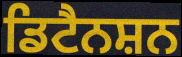
ਡਿਟੈਨਸ਼ਨ